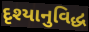
દૃશ્યાનુવિદ્ધ